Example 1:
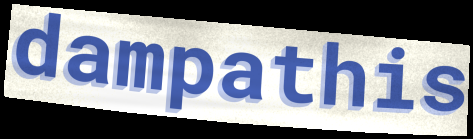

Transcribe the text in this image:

dampathis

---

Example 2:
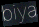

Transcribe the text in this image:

biya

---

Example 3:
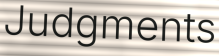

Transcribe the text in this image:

Judgments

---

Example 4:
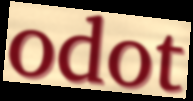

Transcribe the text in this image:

odot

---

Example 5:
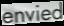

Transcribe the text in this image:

envied